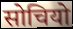
सोचियो